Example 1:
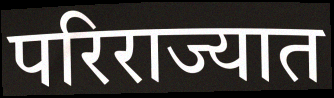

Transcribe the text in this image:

परिराज्यात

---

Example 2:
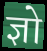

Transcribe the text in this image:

ज्ञो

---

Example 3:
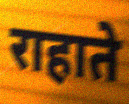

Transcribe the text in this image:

राहाते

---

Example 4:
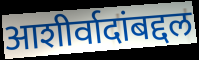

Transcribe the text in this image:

आशीर्वादांबद्दल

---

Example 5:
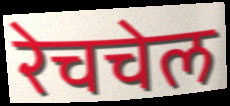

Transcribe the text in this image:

रेचचेल